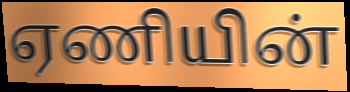
ஏணியின்